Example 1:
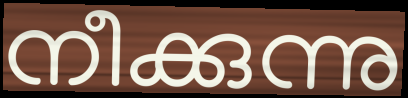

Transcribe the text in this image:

നീക്കുന്നു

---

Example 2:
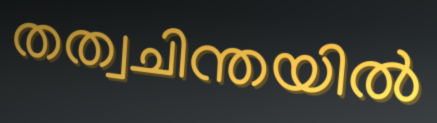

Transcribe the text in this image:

തത്വചിന്തയിൽ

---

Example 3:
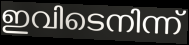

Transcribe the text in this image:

ഇവിടെനിന്ന്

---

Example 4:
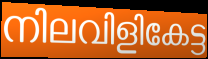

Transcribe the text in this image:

നിലവിളികേട്ട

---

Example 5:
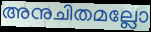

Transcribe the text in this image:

അനുചിതമല്ലോ